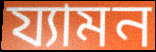
য্যামন